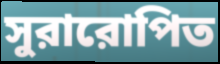
সুরারোপিত